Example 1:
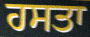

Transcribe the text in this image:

ਹਸਤਾ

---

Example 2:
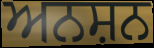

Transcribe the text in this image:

ਅਨਸ਼ਨ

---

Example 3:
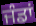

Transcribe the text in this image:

ਜੰਡਾਂ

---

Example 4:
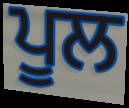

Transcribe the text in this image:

ਪੂਲ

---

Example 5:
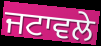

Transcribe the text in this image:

ਜਟਾਵਲੇ